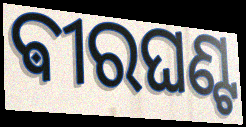
ଵୀରଘଣ୍ଟ